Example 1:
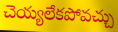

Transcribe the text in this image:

చెయ్యలేకపోవచ్చు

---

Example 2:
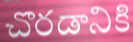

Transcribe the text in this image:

చొరడానికి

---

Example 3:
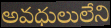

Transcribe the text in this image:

అవధులులేని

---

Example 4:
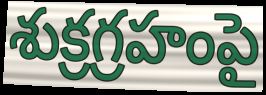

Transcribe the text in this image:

శుక్రగ్రహంపై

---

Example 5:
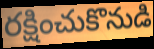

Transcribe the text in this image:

రక్షించుకొనుడి